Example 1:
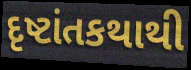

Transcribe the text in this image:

દૃષ્ટાંતકથાથી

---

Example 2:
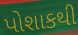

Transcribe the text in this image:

પોશાકથી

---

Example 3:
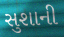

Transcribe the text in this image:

સુશાની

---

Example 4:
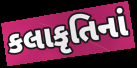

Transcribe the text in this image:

કલાકૃતિનાં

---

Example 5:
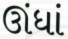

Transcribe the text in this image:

ઊંધાં